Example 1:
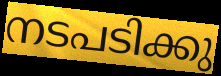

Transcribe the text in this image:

നടപടിക്കു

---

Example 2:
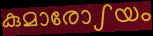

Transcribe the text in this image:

കുമാരോഽയം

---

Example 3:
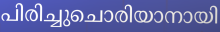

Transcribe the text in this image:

പിരിച്ചുചൊരിയാനായി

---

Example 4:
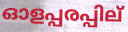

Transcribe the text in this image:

ഓളപ്പരപ്പില്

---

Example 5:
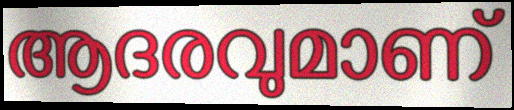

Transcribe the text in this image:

ആദരവുമാണ്